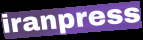
iranpress